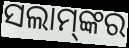
ସଲାମ୍‌ଙ୍କର